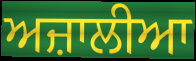
ਅਜ਼ਾਲੀਆ